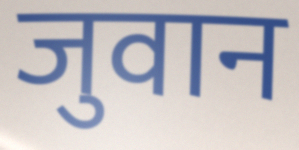
जुवान